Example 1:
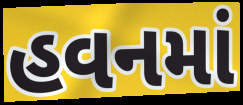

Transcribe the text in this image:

હવનમાં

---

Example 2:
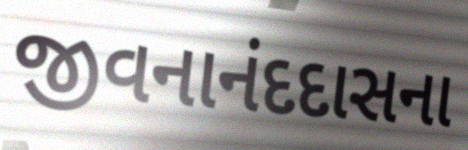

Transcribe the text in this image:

જીવનાનંદદાસના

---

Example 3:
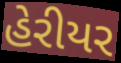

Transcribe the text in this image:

હેરીયર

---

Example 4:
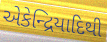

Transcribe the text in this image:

એકેન્દ્રિયાદિથી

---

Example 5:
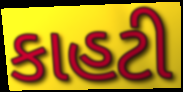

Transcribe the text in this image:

કાહટી